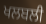
ਖਲਬਲੀ